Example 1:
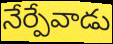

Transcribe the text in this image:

నేర్పేవాడు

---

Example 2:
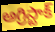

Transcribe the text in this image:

అగ్రిస్టాక్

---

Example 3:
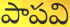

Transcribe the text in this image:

పాపవి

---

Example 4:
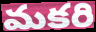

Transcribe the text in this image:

మకరి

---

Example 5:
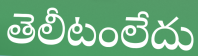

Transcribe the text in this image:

తెలీటంలేదు